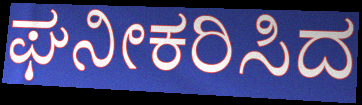
ಘನೀಕರಿಸಿದ